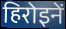
हिरोइनें